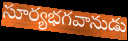
సూర్యభగవానుడు